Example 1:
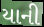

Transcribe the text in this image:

યાની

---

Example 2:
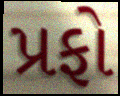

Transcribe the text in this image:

પ્રફો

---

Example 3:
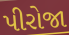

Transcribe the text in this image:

પીરોજા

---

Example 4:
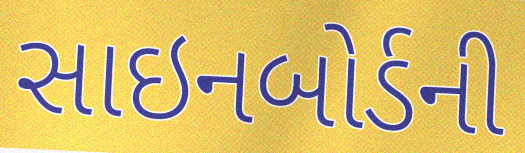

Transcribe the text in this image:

સાઇનબોર્ડની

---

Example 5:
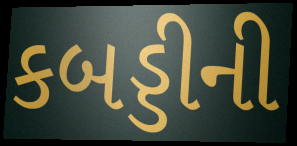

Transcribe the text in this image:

કબડ્ડીની